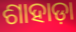
ଶାହାଡ଼ା